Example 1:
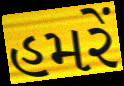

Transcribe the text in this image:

હમરેં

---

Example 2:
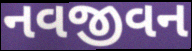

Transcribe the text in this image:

નવજીવન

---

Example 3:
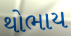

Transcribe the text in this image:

થોભાય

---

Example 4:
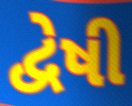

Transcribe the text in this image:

દ્વેષી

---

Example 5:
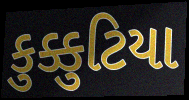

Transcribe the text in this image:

કુક્કુટિયા